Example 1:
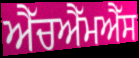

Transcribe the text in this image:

ਐੱਚਐੱਮਐੱਸ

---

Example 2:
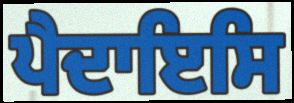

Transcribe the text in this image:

ਪੈਦਾਇਸਿ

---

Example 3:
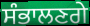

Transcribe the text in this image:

ਸੰਭਾਲਣਗੇ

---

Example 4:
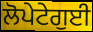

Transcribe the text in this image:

ਲੋਪੇਟੇਗੁਈ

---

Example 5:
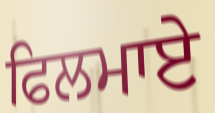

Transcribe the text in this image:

ਫਿਲਮਾਏ